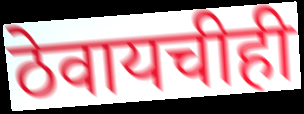
ठेवायचीही